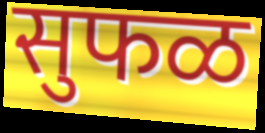
सुफळ